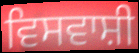
ਵਿਸਵਾਸ਼ੀ